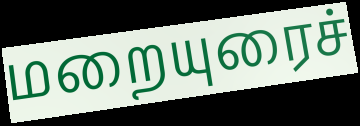
மறையுரைச்